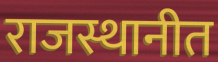
राजस्थानीत